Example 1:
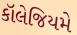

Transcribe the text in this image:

કૉલેજિયમે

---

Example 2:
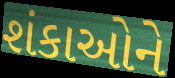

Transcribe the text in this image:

શંકાઓને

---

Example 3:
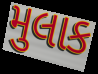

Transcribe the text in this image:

મુલાક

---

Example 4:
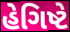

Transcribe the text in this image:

હેગિષ્ટે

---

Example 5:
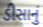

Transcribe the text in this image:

ડીસાનું